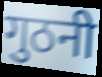
गुठनी